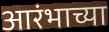
आरंभाच्या